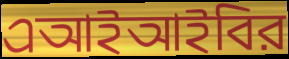
এআইআইবির